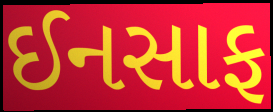
ઈનસાફ